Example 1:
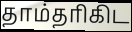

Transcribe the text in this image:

தாம்தரிகிட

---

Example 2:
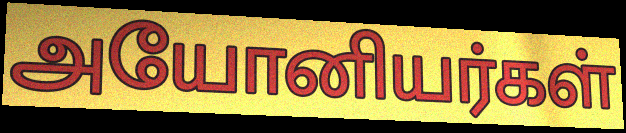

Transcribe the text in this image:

அயோனியர்கள்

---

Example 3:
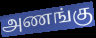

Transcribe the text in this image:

அணங்கு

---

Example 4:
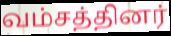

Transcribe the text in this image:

வம்சத்தினர்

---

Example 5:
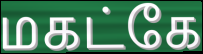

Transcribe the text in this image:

மகட்கே